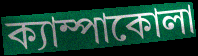
ক্যাম্পাকোলা